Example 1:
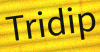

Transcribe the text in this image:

Tridip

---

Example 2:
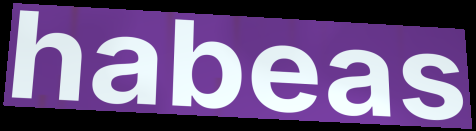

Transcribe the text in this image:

habeas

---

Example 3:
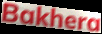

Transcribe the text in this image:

Bakhera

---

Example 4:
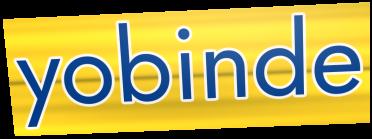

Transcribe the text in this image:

yobinde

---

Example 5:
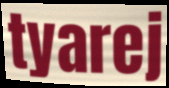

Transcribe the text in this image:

tyarej